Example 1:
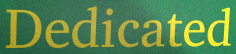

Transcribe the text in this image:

Dedicated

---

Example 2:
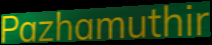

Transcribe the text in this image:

Pazhamuthir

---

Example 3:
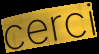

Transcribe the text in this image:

cerci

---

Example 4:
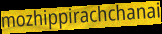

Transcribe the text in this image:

mozhippirachchanai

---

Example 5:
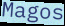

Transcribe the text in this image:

Magos